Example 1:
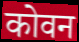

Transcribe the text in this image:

कोवन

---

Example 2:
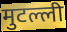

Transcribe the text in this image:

मुटल्ली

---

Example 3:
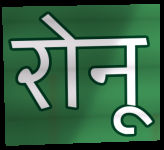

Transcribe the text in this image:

रोनू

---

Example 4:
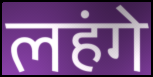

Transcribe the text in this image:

लहंगे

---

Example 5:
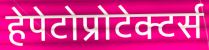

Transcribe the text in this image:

हेपेटोप्रोटेक्टर्स